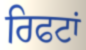
ਰਿਫਟਾਂ